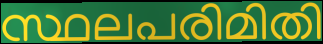
സ്ഥലപരിമിതി